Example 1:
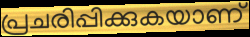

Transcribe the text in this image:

പ്രചരിപ്പിക്കുകയാണ്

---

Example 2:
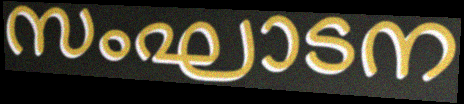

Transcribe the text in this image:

സംഘാടന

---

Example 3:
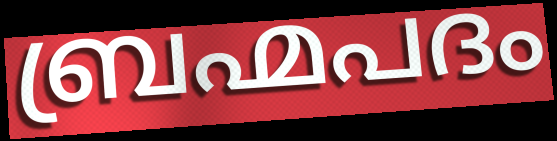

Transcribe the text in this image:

ബ്രഹ്മപദം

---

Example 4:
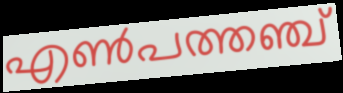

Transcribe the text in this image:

എൺപത്തഞ്ച്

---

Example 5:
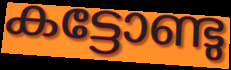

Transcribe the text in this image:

കട്ടോണ്ടു